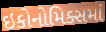
ઇકોનોમિક્સમાં